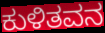
ಕುಳಿತವನ